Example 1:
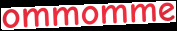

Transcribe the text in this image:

ommomme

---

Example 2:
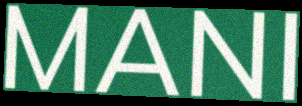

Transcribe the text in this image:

MANI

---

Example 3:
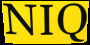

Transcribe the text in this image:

NIQ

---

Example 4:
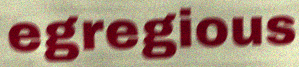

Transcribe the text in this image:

egregious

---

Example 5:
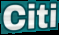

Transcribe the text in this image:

Citi